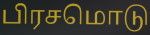
பிரசமொடு